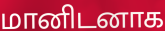
மானிடனாக